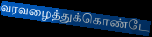
வரவழைத்துக்கொண்டே